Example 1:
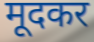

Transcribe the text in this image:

मूदकर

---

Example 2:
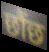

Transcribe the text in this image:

छौंछ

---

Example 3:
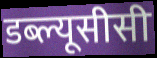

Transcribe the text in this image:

डब्ल्यूसीसी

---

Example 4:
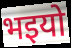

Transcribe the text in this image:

भइयो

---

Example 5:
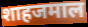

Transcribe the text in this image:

शाहजमाल